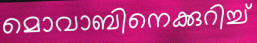
മൊവാബിനെക്കുറിച്ച്